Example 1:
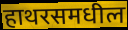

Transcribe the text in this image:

हाथरसमधील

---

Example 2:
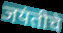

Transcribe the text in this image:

जयंतीचे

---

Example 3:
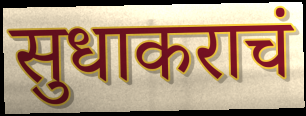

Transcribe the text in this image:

सुधाकराचं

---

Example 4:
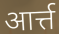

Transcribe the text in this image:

आर्त्त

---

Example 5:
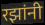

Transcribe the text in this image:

रझांनी